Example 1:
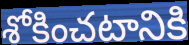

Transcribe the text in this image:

శోకించటానికి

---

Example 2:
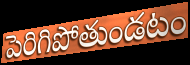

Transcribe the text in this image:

పెరిగిపోతుండటం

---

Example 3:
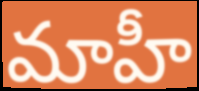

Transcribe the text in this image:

మాహీ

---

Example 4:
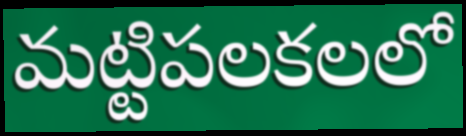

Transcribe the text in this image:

మట్టిపలకలలో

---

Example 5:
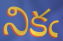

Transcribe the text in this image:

నికఁ